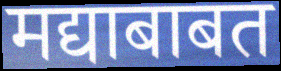
मद्याबाबत